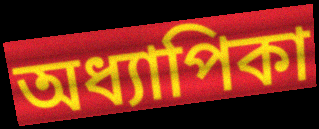
অধ্যাপিকা